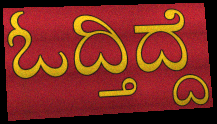
ಓದ್ತಿದ್ದೆ